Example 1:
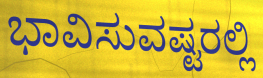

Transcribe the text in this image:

ಭಾವಿಸುವಷ್ಟರಲ್ಲಿ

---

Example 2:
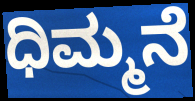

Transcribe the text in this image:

ಧಿಮ್ಮನೆ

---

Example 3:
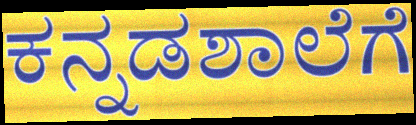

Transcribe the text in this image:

ಕನ್ನಡಶಾಲೆಗೆ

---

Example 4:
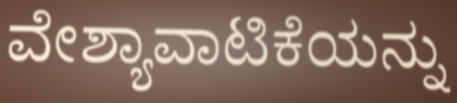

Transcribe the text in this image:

ವೇಶ್ಯಾವಾಟಿಕೆಯನ್ನು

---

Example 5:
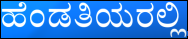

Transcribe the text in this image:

ಹೆಂಡತಿಯರಲ್ಲಿ